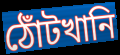
ঠোঁটখানি